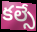
కల్సే